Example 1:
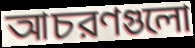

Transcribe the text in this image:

আচরণগুলো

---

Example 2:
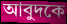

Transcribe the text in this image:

আবুদকে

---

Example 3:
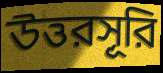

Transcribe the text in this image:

উত্তরসূরি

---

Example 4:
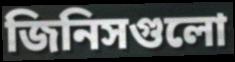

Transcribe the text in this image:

জিনিসগুলো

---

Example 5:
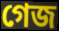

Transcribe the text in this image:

গেজ